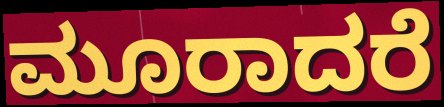
ಮೂರಾದರೆ